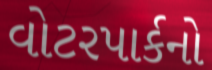
વોટરપાર્કનો